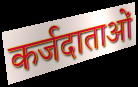
कर्जदाताओं